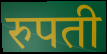
रुपती